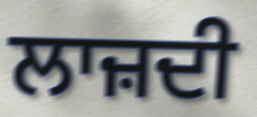
ਲਾਜ਼ਦੀ